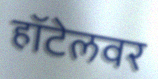
हॉटेलवर